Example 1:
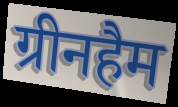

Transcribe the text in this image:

ग्रीनहैम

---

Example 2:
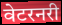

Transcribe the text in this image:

वेटरनरी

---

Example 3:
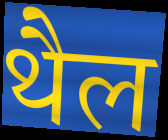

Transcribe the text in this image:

थैल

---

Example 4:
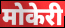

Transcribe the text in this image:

मोकेरी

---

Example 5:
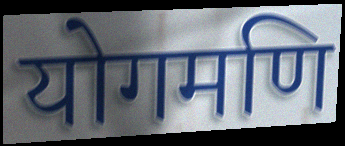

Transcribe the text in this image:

योगमणि